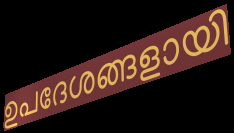
ഉപദേശങ്ങളായി